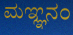
ಮಞ್ಞನಂ